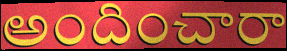
అందించారా